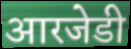
आरजेडी